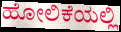
ಹೋಲಿಕೆಯಲ್ಲಿ